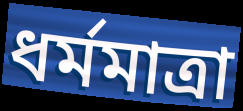
ধর্মমাত্রা